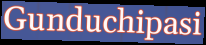
Gunduchipasi